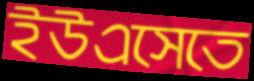
ইউএসেতে